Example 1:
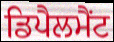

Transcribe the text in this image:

ਡਿਪੈਲਮੈਂਟ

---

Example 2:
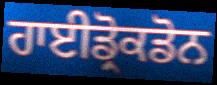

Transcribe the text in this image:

ਹਾਈਡ੍ਰੋਕਡੋਨ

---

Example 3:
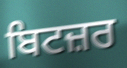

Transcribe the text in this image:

ਬਿਟਜ਼ਰ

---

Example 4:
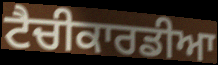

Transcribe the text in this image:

ਟੈਚੀਕਾਰਡੀਆ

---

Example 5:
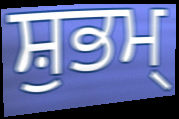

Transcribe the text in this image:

ਸ਼ੁਭਮ੍